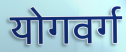
योगवर्ग